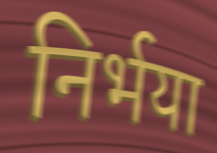
निर्भया